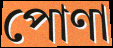
পোণা